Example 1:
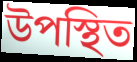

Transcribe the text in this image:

উপস্থিত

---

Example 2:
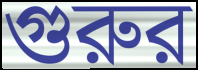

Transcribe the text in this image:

গুরুর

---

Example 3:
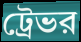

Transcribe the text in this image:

ট্রেভর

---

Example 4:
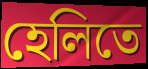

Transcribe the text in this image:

হেলিতে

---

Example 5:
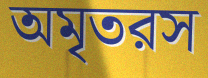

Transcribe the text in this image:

অমৃতরস